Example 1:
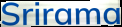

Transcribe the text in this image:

Srirama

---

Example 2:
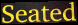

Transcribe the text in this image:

Seated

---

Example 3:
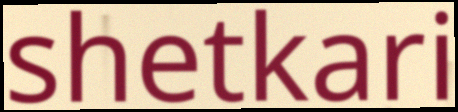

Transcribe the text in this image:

shetkari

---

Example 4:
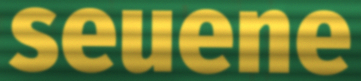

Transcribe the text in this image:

seuene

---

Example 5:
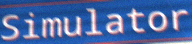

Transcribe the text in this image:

Simulator